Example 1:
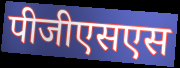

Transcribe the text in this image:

पीजीएसएस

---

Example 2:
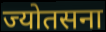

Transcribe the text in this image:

ज्योतसना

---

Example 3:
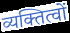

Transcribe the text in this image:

व्यक्तित्वों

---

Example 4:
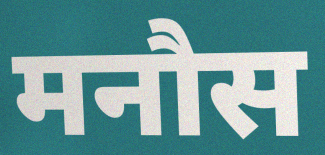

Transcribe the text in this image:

मनौस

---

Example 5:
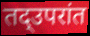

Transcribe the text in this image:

तद्उपरांत